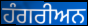
ਹੰਗਰੀਅਨ